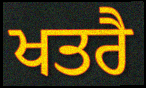
ਖਤਰੈ